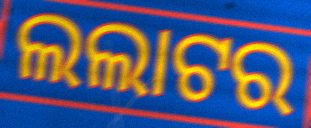
ଲଲାଟର